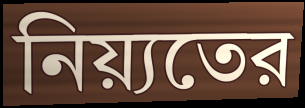
নিয়্যতের